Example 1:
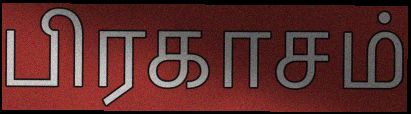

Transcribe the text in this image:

பிரகாசம்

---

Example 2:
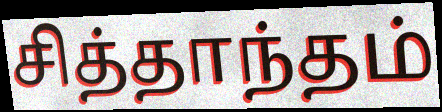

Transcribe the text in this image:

சித்தாந்தம்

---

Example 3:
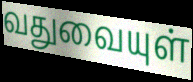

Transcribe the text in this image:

வதுவையுள்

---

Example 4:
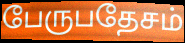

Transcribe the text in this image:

பேருபதேசம்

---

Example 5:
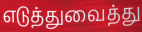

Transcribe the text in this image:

எடுத்துவைத்து